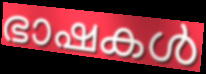
ഭാഷകൾ